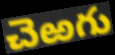
చెఱగు